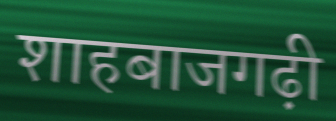
शाहबाजगढ़ी